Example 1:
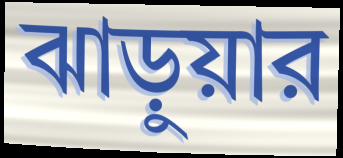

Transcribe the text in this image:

ঝাড়ুয়ার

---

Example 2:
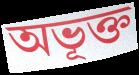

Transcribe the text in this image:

অভূক্ত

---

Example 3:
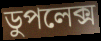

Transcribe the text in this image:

ডুপলেক্স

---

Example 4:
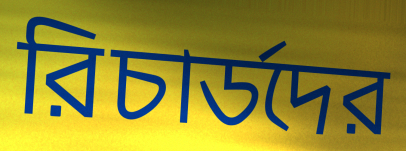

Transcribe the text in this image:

রিচার্ডদের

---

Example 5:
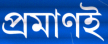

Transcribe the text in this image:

প্রমাণই